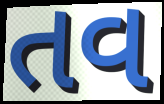
તવ